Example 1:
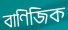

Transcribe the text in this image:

বাণিজিক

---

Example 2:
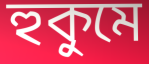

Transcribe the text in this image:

হুকুমে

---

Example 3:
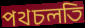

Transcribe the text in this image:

পথচলতি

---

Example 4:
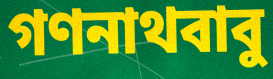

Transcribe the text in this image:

গণনাথবাবু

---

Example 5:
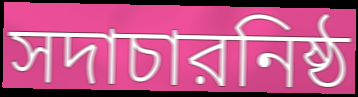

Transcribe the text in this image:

সদাচারনিষ্ঠ